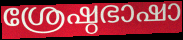
ശ്രേഷ്ഠഭാഷാ